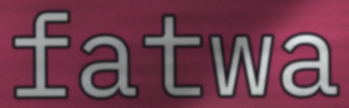
fatwa